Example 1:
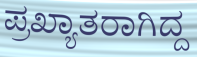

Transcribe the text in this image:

ಪ್ರಖ್ಯಾತರಾಗಿದ್ದ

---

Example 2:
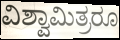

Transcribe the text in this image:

ವಿಶ್ವಾಮಿತ್ರರೂ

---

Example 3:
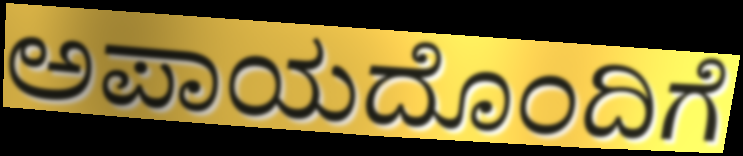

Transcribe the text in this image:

ಅಪಾಯದೊಂದಿಗೆ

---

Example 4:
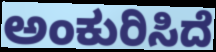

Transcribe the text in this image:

ಅಂಕುರಿಸಿದೆ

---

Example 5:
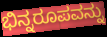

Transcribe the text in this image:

ಭಿನ್ನರೂಪವನ್ನು